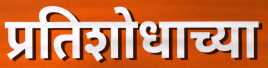
प्रतिशोधाच्या